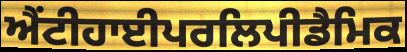
ਐਂਟੀਹਾਈਪਰਲਿਪੀਡੈਮਿਕ